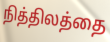
நித்திலத்தை